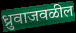
ध्रुवाजवळील